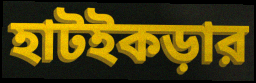
হাটইকড়ার